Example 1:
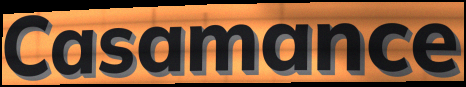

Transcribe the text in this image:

Casamance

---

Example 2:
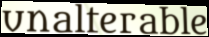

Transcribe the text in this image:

unalterable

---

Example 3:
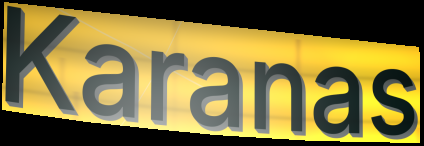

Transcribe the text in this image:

Karanas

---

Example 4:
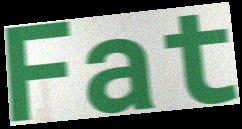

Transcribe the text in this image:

Fat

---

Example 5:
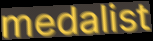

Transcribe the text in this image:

medalist